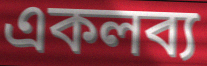
একলব্য